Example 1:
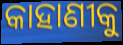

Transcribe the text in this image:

କାହାଣୀକୁ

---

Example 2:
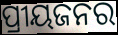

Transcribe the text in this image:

ପ୍ରୀୟଜନର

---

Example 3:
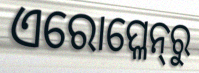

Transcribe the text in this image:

ଏରୋପ୍ଳେନ୍‍ରୁ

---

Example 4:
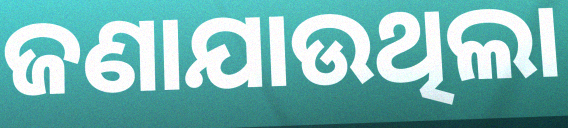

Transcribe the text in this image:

ଜଣାଯାଉଥିଲା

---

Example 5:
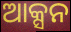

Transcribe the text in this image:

ଆକ୍ସନ